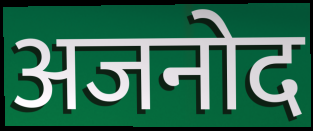
अजनोद